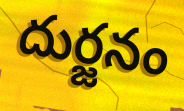
దుర్జనం